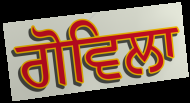
ਗੋਵਿਲਾ